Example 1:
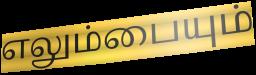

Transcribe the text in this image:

எலும்பையும்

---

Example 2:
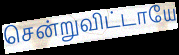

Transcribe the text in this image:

சென்றுவிட்டாயே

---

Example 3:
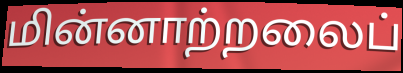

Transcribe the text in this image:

மின்னாற்றலைப்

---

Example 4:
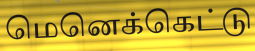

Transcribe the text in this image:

மெனெக்கெட்டு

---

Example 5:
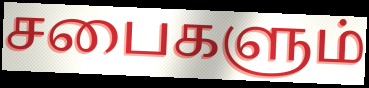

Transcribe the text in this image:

சபைகளும்